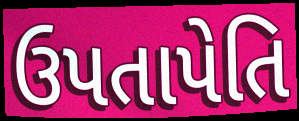
ઉપતાપેતિ